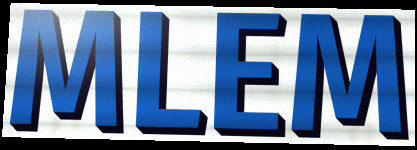
MLEM